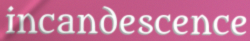
incandescence